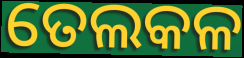
ତେଲକଳ